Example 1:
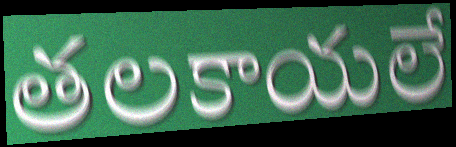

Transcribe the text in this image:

తలకాయలే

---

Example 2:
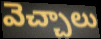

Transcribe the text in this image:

వెచ్చాలు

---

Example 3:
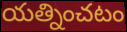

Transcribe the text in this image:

యత్నించటం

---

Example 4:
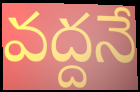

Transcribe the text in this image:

వద్దనే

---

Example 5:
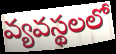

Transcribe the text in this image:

వ్యవస్థలలో